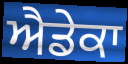
ਐਡੇਕਾ